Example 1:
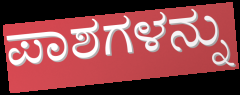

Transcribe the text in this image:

ಪಾಶಗಳನ್ನು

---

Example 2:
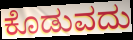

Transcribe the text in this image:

ಕೊಡುವದು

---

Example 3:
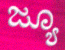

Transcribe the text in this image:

ಜ್ಯೂ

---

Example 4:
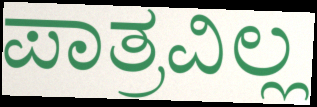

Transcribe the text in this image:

ಪಾತ್ರವಿಲ್ಲ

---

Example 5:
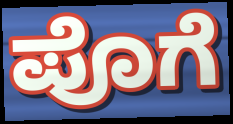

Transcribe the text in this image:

ಪೊಗೆ